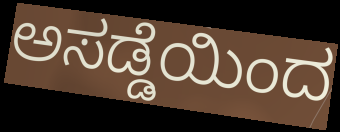
ಅಸಡ್ಡೆಯಿಂದ